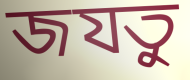
জযতু